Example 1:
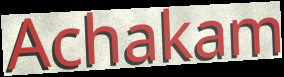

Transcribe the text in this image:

Achakam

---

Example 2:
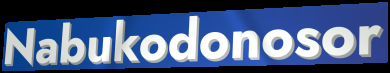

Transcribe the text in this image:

Nabukodonosor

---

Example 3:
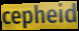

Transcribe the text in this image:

cepheid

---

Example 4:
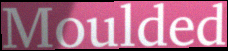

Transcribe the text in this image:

Moulded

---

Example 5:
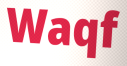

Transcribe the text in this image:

Waqf